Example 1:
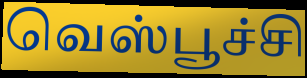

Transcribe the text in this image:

வெஸ்பூச்சி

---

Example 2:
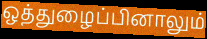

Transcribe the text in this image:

ஒத்துழைப்பினாலும்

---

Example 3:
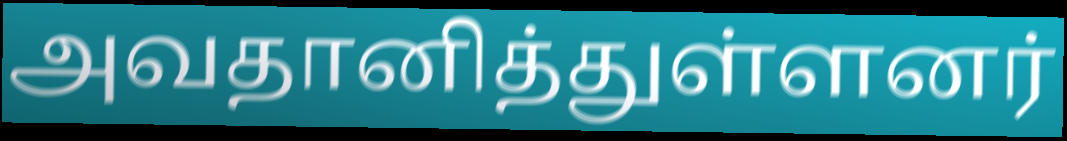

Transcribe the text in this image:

அவதானித்துள்ளனர்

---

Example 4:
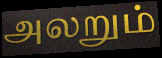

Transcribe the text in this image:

அலறும்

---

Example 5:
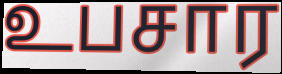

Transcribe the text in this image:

உபசார